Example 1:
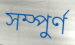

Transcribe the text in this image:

সম্পুৰ্ণ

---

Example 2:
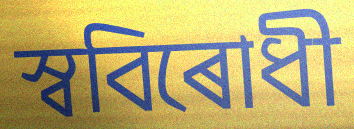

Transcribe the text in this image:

স্ববিৰোধী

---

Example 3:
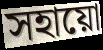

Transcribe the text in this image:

সহায়ো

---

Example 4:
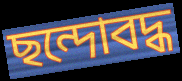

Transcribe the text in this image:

ছন্দোবদ্ধ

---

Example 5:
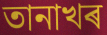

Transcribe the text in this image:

তানাখৰ